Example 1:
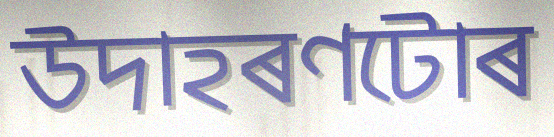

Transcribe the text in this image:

উদাহৰণটোৰ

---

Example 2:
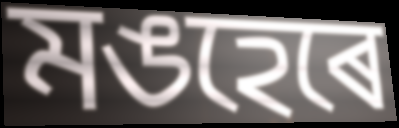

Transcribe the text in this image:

মঙহেৰে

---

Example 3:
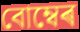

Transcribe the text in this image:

বোম্বেৰ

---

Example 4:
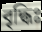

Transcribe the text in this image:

বৃদ্ধিঃ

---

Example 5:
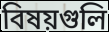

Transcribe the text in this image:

বিষয়গুলি